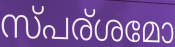
സ്പര്ശമോ